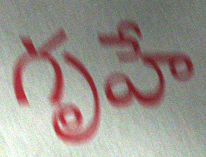
గృహే